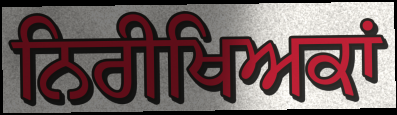
ਨਿਰੀਖਿਅਕਾਂ